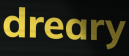
dreary